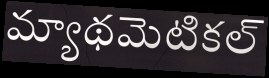
మ్యాథమెటికల్